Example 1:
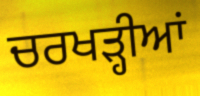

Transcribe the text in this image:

ਚਰਖੜ੍ਹੀਆਂ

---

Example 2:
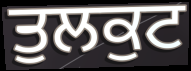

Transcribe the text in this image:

ਤੁਲਕੁਟ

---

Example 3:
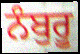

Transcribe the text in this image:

ਨੰਬੁਰੂ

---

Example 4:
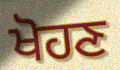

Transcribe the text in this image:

ਖੋਹਣ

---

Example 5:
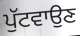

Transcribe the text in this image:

ਪੁੱਟਵਾਉਣ